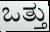
ಒತ್ತು